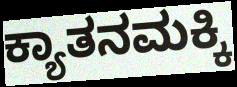
ಕ್ಯಾತನಮಕ್ಕಿ